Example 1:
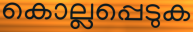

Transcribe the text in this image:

കൊല്ലപ്പെടുക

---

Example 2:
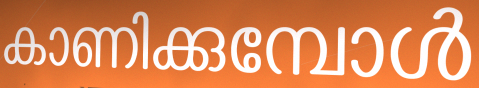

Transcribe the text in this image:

കാണിക്കുമ്പോൾ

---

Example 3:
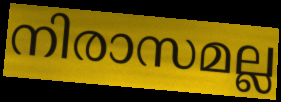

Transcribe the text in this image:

നിരാസമല്ല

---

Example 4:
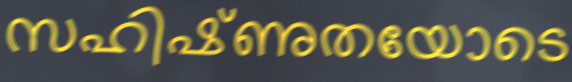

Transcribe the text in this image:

സഹിഷ്‌ണുതയോടെ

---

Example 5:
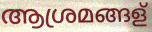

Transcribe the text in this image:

ആശ്രമങ്ങള്